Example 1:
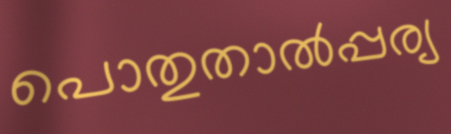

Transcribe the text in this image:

പൊതുതാൽപ്പര്യ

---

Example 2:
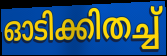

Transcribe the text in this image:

ഓടിക്കിതച്ച്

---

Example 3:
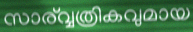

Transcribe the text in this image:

സാര്വ്വത്രികവുമായ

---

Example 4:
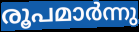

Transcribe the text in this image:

രൂപമാർന്നു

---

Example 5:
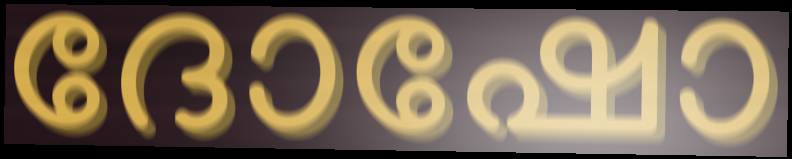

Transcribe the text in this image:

ദോഷോ